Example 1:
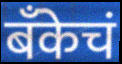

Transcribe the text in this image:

बॅंकेचं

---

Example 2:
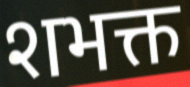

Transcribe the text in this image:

शभक्त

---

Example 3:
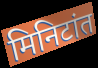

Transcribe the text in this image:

मिनिटांत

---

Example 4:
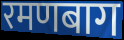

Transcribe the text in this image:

रमणबाग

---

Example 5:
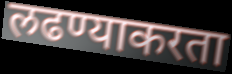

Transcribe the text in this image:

लढण्याकरता